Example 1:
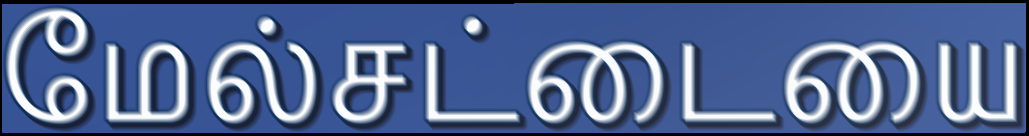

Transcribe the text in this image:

மேல்சட்டையை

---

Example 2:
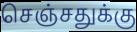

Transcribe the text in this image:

செஞ்சதுக்கு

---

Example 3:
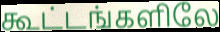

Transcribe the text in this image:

கூட்டங்களிலே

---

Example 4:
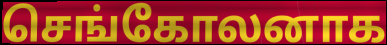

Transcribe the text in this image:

செங்கோலனாக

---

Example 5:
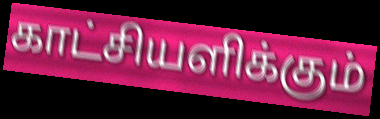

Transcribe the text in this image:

காட்சியளிக்கும்